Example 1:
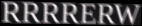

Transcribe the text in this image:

RRRRERW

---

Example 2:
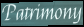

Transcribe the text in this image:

Patrimony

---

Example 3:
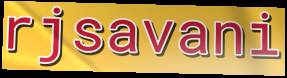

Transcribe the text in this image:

rjsavani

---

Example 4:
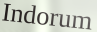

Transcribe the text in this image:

Indorum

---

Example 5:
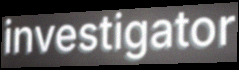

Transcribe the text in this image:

investigator